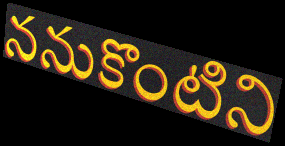
ననుకొంటిని